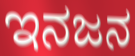
ಇನಜನ